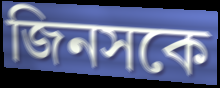
জিনসকে